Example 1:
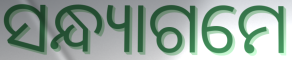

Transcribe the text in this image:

ସନ୍ଧ୍ୟାଗମେ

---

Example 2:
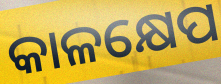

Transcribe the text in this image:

କାଳକ୍ଷେପ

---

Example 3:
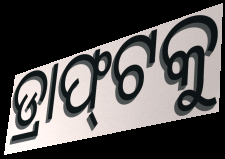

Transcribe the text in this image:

ଡ୍ରାଫ୍‌ଟକୁ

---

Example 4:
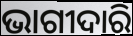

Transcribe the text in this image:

ଭାଗୀଦାରି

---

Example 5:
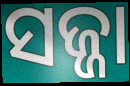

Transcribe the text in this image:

ସଜ୍ଜା